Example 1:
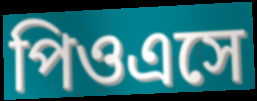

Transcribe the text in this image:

পিওএসে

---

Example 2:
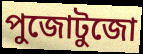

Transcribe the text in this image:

পুজোটুজো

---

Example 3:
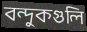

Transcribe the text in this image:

বন্দুকগুলি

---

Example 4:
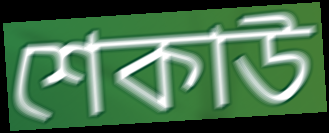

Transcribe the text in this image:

শেকাউ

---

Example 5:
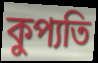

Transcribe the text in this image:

কুপ্যতি